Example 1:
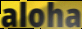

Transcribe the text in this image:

aloha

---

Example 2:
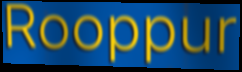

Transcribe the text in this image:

Rooppur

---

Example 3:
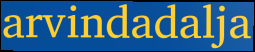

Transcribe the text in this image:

arvindadalja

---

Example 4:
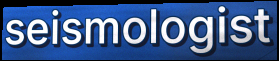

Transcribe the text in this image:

seismologist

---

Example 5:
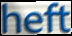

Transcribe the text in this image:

heft